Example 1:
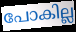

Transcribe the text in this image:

പോകില്ല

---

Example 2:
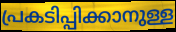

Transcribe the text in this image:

പ്രകടിപ്പിക്കാനുള്ള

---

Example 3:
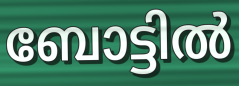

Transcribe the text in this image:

ബോട്ടിൽ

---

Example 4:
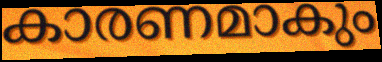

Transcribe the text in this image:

കാരണമാകും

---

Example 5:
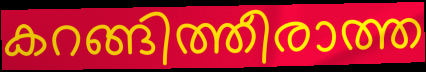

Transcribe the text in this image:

കറങ്ങിത്തീരാത്ത